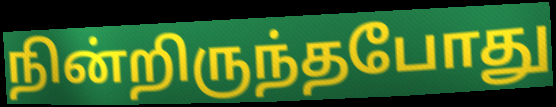
நின்றிருந்தபோது